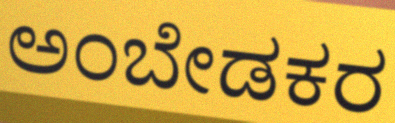
ಅಂಬೇಡಕರ